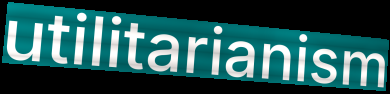
utilitarianism